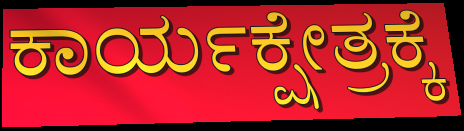
ಕಾರ್ಯಕ್ಷೇತ್ರಕ್ಕೆ